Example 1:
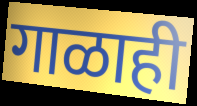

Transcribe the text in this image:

गाळाही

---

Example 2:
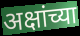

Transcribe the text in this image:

अक्षांच्या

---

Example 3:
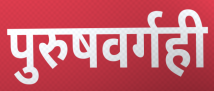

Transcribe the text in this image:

पुरुषवर्गही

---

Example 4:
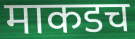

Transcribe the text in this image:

माकडच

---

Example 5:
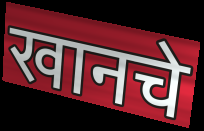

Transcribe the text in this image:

खानचे